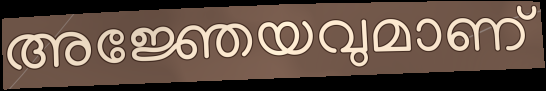
അജ്ഞേയവുമാണ്